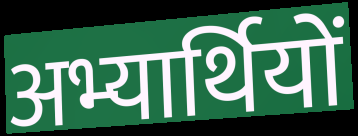
अभ्‍यार्थियों